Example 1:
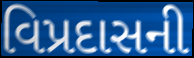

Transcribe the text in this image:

વિપ્રદાસની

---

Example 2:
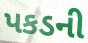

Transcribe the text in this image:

પકડની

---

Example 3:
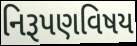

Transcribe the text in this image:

નિરૂપણવિષય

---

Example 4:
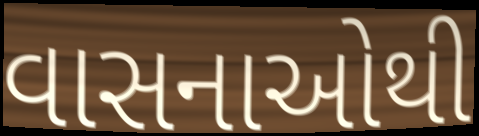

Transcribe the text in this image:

વાસનાઓથી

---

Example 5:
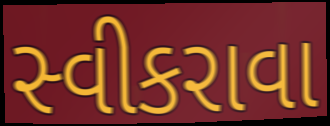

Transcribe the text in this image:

સ્વીકરાવા